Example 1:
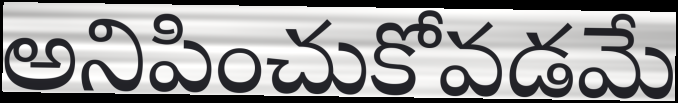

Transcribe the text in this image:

అనిపించుకోవడమే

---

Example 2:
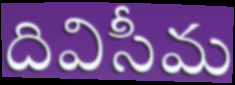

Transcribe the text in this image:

దివిసీమ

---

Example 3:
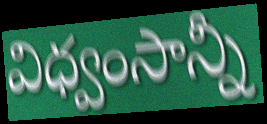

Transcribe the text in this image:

విధ్వంసాన్నీ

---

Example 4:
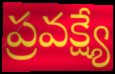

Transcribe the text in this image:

ప్రవక్ష్యే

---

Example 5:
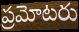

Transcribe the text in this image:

ప్రమోటరు